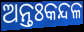
ଅନ୍ତଃକନ୍ଦଳ